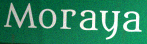
Moraya